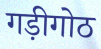
गड़ीगोठ